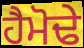
ਹੈਮੋਢੇ